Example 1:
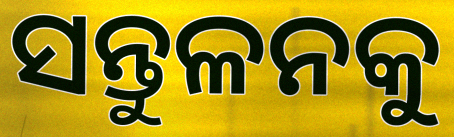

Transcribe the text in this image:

ସନ୍ତୁଳନକୁ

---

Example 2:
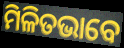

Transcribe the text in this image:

ମିଳିତଭାବେ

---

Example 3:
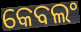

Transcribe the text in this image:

କେବଲଂ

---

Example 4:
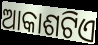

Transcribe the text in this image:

ଆକାଶଟିଏ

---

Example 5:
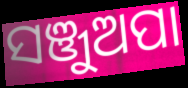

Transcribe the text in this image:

ସଞ୍ଜୁଅପା